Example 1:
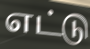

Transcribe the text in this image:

எட்டு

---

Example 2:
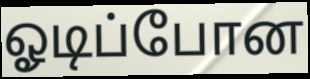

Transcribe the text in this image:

ஓடிப்போன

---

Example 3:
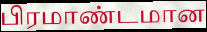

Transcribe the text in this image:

பிரமாண்டமான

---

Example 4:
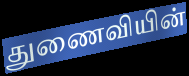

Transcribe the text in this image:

துணைவியின்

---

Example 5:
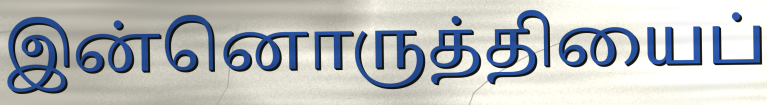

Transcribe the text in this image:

இன்னொருத்தியைப்